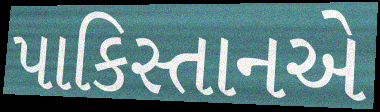
પાકિસ્તાનએ